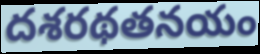
దశరథతనయం